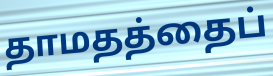
தாமதத்தைப்